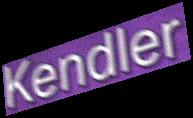
Kendler